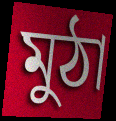
মুঠা